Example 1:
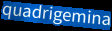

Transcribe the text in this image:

quadrigemina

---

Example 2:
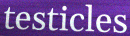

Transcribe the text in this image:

testicles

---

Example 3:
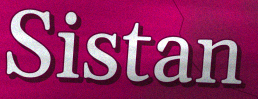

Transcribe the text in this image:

Sistan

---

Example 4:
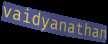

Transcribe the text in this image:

vaidyanathan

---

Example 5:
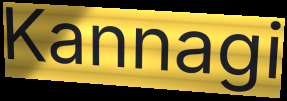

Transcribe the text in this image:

Kannagi